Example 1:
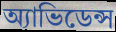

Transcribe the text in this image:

অ্যাভিডেন্স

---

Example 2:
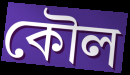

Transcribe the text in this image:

কৌল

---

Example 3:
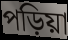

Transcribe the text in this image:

পড়িয়া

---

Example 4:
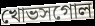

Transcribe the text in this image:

খোভসগোল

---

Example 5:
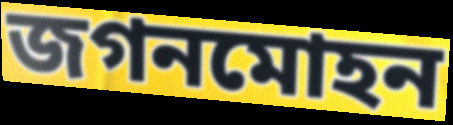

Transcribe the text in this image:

জগনমোহন